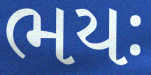
ભયઃ